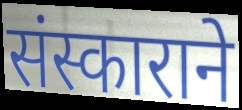
संस्काराने